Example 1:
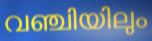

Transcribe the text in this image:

വഞ്ചിയിലും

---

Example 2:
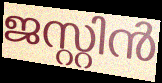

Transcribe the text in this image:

ജസ്റ്റിൻ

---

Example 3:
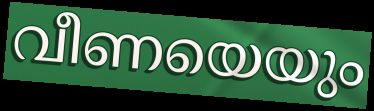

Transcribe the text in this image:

വീണയെയും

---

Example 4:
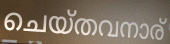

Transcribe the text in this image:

ചെയ്തവനാര്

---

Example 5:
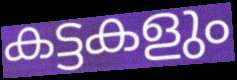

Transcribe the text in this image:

കട്ടകളും